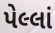
પેલ્લાં